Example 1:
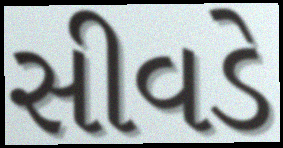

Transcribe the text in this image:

સીવડે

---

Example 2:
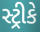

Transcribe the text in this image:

સ્ટ્રીકે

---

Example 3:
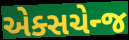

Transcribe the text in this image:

એક્સચેન્જ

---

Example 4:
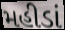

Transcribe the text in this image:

મહીડાં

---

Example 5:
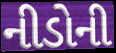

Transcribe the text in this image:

નીડોની